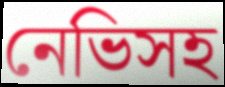
নেভিসহ